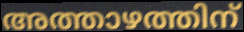
അത്താഴത്തിന്